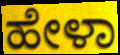
ಹೇಳಾ